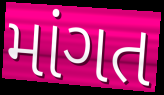
માંગત